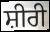
ਸ਼ੀਰੀ